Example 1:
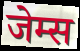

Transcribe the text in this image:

जेम्स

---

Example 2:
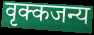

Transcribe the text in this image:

वृक्कजन्य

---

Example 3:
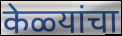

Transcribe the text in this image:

केळ्यांचा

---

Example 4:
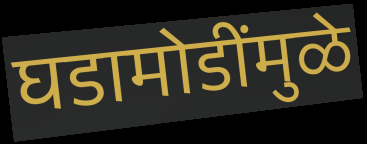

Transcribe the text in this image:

घडामोडींमुळे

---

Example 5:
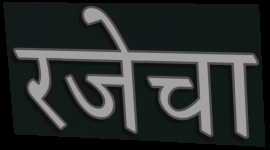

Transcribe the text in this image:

रजेचा